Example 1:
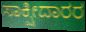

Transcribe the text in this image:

ಸಾಕ್ಷೀದಾರರ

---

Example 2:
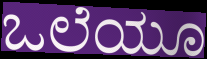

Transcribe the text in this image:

ಒಲೆಯೂ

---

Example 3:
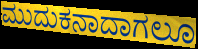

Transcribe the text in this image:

ಮುದುಕನಾದಾಗಲೂ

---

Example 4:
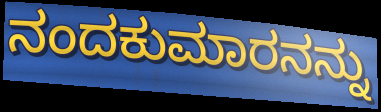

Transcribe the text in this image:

ನಂದಕುಮಾರನನ್ನು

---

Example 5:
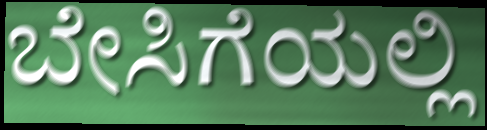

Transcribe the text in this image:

ಬೇಸಿಗೆಯಲ್ಲಿ